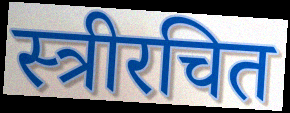
स्त्रीरचित